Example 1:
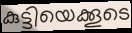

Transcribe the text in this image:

കുട്ടിയെക്കൂടെ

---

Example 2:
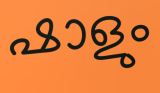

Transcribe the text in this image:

ഷാളും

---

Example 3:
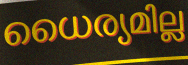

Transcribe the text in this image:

ധൈര്യമില്ല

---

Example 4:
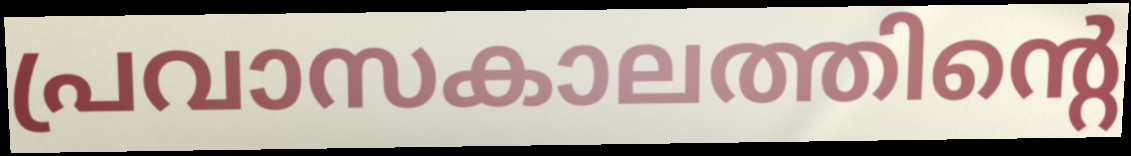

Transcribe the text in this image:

പ്രവാസകാലത്തിന്റെ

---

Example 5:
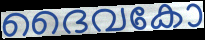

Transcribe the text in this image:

ദൈവകോ